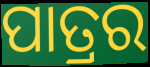
ପାତ୍ରର